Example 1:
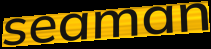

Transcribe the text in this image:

seaman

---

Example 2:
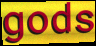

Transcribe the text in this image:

gods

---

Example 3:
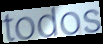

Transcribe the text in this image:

todos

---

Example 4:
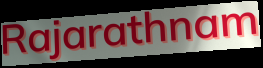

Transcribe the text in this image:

Rajarathnam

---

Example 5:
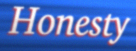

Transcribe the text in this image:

Honesty